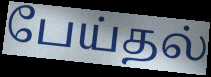
பேய்தல்